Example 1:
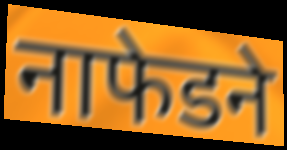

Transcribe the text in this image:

नाफेडने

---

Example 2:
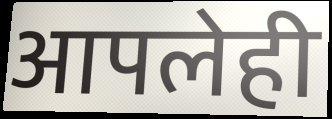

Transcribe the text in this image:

आपलेही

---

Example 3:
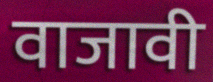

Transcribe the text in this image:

वाजावी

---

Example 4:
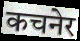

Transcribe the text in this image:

कचनेर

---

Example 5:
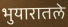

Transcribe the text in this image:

भुयारातले